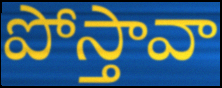
పోస్తావా